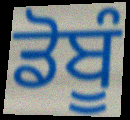
ਡੋਬੂੰ